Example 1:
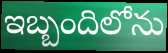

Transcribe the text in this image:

ఇబ్బందిలోను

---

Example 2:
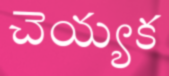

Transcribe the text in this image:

చెయ్యక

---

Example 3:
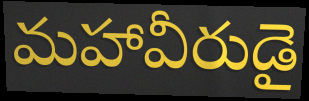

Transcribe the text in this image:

మహావీరుడై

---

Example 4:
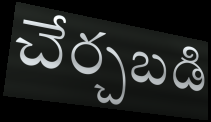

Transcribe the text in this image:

చేర్చబడి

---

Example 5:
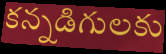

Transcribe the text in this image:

కన్నడిగులకు